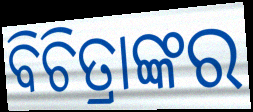
ବିଚିତ୍ରାଙ୍କର